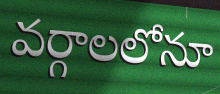
వర్గాలలోనూ